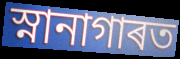
স্নানাগাৰত